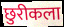
छुरीकला